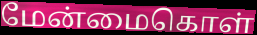
மேன்மைகொள்